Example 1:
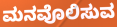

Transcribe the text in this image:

ಮನವೊಲಿಸುವ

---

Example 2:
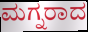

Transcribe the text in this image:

ಮಗ್ನರಾದ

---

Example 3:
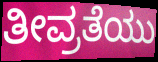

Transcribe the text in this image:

ತೀವ್ರತೆಯು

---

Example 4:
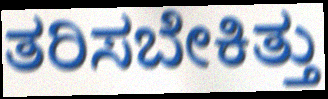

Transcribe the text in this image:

ತರಿಸಬೇಕಿತ್ತು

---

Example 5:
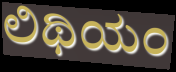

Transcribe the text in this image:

ಲಿಥಿಯಂ